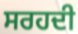
ਸਰਹਦੀ